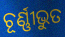
ଚୂର୍ଣ୍ଣୀଭୁତ